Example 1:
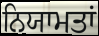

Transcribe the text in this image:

ਨਿਯਾਮਤਾਂ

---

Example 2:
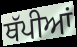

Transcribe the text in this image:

ਥੱਪੀਆਂ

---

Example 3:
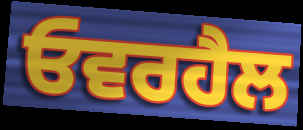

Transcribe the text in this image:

ਓਵਰਹੈਲ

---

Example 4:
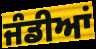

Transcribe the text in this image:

ਜੰਡੀਆਂ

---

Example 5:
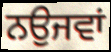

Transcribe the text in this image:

ਨਉਜਵਾਂ